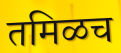
तमिळच